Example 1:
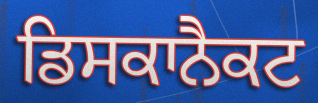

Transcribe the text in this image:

ਡਿਸਕਾਨੈਕਟ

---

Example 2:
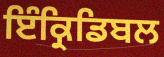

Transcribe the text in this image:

ਇੰਕ੍ਰਿਡਿਬਲ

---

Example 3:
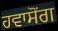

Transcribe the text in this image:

ਹਵਾਸੋਂਗ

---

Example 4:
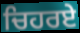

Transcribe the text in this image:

ਚਿਹਰਏ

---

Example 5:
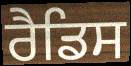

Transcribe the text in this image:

ਰੈਡਿਸ